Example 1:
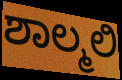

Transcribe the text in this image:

ಶಾಲ್ಮಲಿ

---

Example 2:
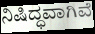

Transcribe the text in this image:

ನಿಷಿದ್ಧವಾಗಿವೆ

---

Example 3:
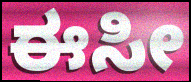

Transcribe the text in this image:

ಈಸೀ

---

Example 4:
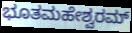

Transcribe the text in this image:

ಭೂತಮಹೇಶ್ವರಮ್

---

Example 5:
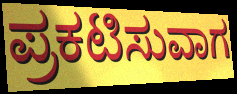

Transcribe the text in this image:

ಪ್ರಕಟಿಸುವಾಗ